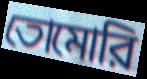
তোমোরি